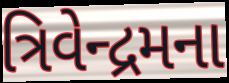
ત્રિવેન્દ્રમના